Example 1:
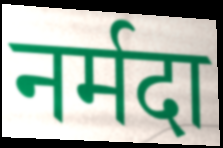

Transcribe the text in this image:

नर्मदा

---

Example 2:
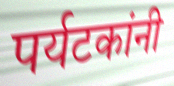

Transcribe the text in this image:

पर्यटकांनी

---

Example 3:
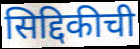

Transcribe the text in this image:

सिद्दिकीची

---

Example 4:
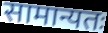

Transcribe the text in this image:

सामान्यतः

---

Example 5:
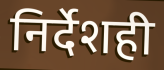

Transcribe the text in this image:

निर्देशही